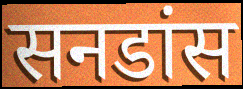
सनडांस